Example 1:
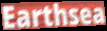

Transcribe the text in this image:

Earthsea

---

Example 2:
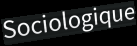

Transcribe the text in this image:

Sociologique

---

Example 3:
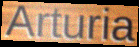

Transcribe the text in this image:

Arturia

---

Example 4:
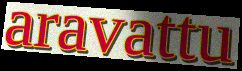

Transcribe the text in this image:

aravattu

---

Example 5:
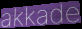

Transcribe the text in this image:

akkade